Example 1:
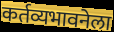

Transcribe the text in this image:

कर्तव्यभावनेला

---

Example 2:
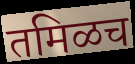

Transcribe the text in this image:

तमिळच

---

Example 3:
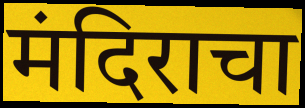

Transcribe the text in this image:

मंदिराचा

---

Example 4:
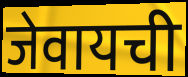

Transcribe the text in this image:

जेवायची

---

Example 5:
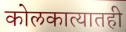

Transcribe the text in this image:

कोलकात्यातही